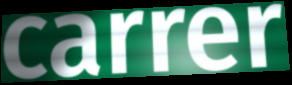
carrer